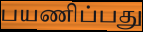
பயணிப்பது